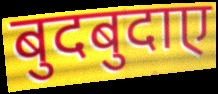
बुदबुदाए